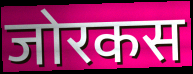
जोरकस